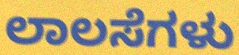
ಲಾಲಸೆಗಳು